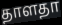
தாளதா